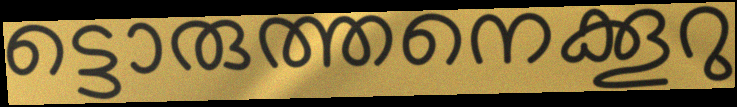
ട്ടൊരുത്തനെക്കൂറു